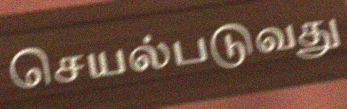
செயல்படுவது